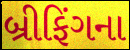
બ્રીફિંગના